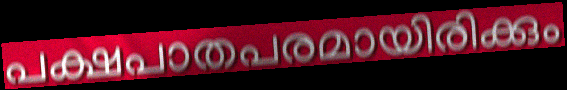
പക്ഷപാതപരമായിരിക്കും